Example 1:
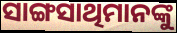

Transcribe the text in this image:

ସାଙ୍ଗସାଥିମାନଙ୍କୁ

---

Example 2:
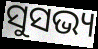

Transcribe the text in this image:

ସୁସଭ୍ୟ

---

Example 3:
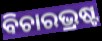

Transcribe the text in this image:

ବିଚାରଭ୍ରଷ୍ଟ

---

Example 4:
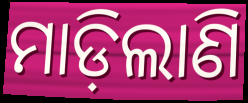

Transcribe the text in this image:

ମାଡ଼ିଲାଣି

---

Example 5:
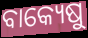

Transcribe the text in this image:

ବାକ୍ୟେଷୁ